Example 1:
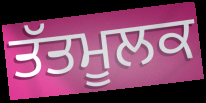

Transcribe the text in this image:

ਤੱਤਮੂਲਕ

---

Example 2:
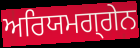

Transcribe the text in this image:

ਅਰਿਯਮਗ੍ਗੇਨ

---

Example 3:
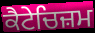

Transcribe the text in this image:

ਕੈਟੇਚਿਜ਼ਮ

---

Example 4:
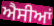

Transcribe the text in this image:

ਐਸੀਆਂ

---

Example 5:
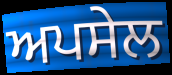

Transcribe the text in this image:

ਅਪਸੇਲ